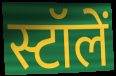
स्टॉलें